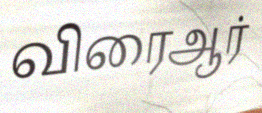
விரைஆர்